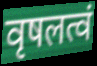
वृषलत्वं